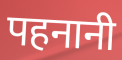
पहनानी